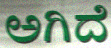
ಅಗಿದೆ